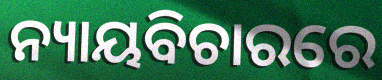
ନ୍ୟାୟବିଚାରରେ